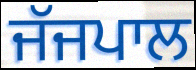
ਜੱਜਪਾਲ